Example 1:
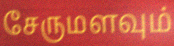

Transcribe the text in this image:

சேருமளவும்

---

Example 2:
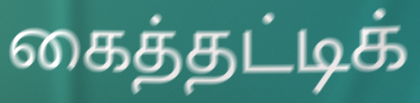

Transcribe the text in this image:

கைத்தட்டிக்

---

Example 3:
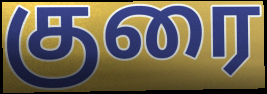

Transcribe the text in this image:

குரை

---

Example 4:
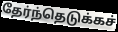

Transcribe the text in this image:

தேர்ந்தெடுக்கச்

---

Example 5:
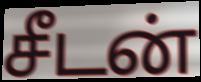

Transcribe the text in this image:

சீடன்